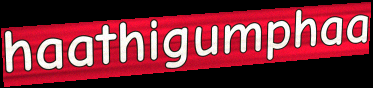
haathigumphaa